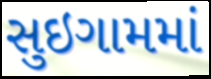
સુઇગામમાં